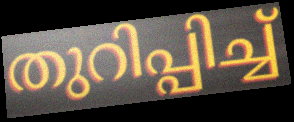
തുറിപ്പിച്ച്